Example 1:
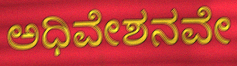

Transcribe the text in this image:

ಅಧಿವೇಶನವೇ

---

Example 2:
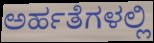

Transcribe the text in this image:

ಅರ್ಹತೆಗಳಲ್ಲಿ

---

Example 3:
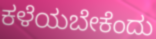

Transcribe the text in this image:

ಕಳೆಯಬೇಕೆಂದು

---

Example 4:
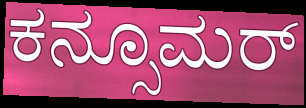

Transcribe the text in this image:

ಕನ್ಸೂಮರ್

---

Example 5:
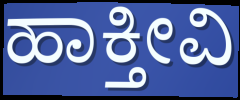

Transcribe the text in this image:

ಹಾಕ್ತೀವಿ